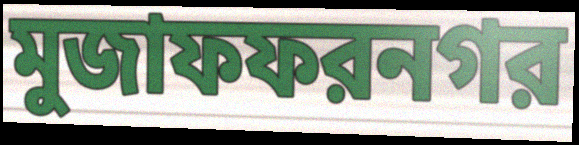
মুজাফফরনগর